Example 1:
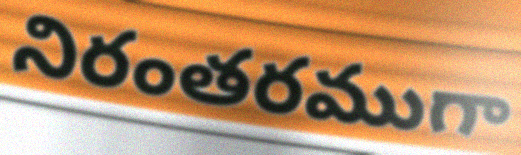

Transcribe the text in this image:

నిరంతరముగా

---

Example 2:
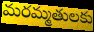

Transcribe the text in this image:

మరమ్మతులకు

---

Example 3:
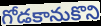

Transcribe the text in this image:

గోడకానుకొని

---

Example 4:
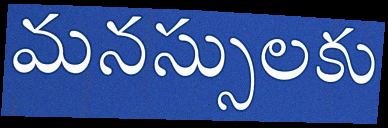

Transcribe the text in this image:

మనస్సులకు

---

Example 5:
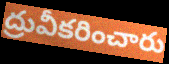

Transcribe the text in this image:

ద్రువీకరించారు